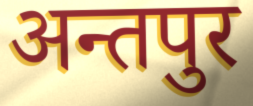
अन्तपुर